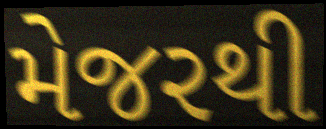
મેજરથી